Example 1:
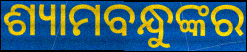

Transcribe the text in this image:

ଶ୍ୟାମବନ୍ଧୁଙ୍କର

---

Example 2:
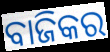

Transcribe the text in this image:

ବାଜିକର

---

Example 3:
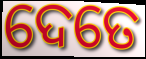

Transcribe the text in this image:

ଦେତେ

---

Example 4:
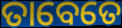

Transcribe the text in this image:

ତାବେତେ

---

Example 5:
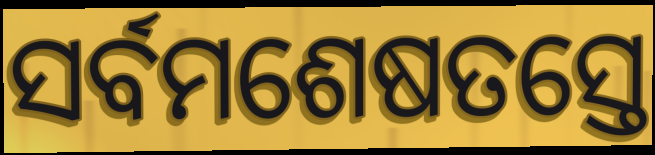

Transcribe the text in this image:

ସର୍ବମଶେଷତସ୍ତେ